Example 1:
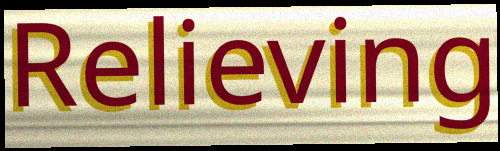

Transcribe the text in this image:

Relieving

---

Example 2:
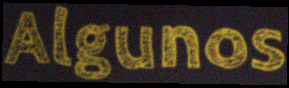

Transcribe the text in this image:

Algunos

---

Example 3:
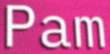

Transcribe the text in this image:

Pam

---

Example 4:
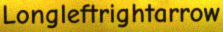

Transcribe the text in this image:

Longleftrightarrow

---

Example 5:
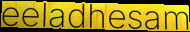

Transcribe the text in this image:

eeladhesam